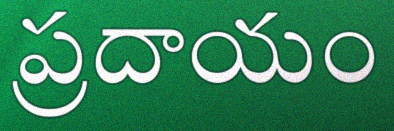
ప్రదాయం